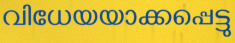
വിധേയയാക്കപ്പെട്ടു